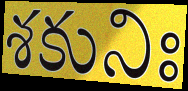
శకునిః